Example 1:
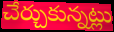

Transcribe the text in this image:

చేర్చుకున్నట్లు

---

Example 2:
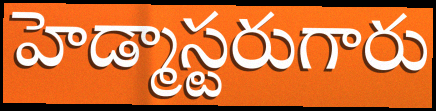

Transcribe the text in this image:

హెడ్మాస్టరుగారు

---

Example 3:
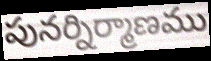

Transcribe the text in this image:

పునర్నిర్మాణము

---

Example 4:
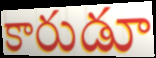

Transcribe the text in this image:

కారుడూ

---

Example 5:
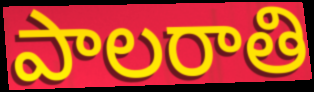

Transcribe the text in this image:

పాలరాతి